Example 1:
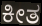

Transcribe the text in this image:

ಕೀತ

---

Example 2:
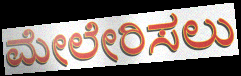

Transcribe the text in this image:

ಮೇಲೇರಿಸಲು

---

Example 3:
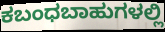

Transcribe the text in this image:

ಕಬಂಧಬಾಹುಗಳಲ್ಲಿ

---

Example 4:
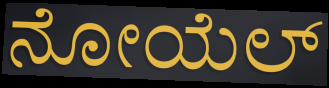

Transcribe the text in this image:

ನೋಯೆಲ್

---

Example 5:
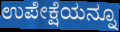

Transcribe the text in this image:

ಉಪೇಕ್ಷೆಯನ್ನೂ